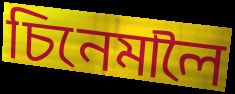
চিনেমালৈ